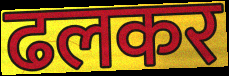
ढलकर